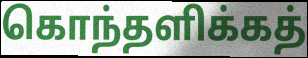
கொந்தளிக்கத்